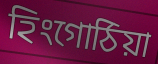
হিংগোঠিয়া